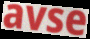
avse